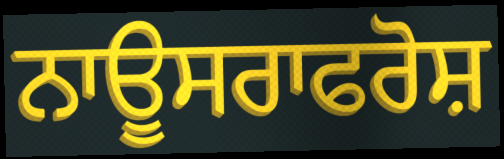
ਨਾਊਸਰਾਫਰੋਸ਼